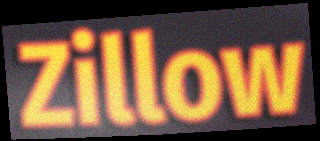
Zillow